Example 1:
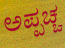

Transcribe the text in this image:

ಅಪ್ಪಚ್ಚ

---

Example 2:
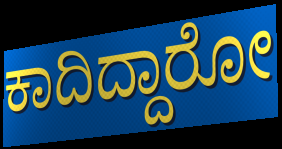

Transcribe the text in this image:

ಕಾದಿದ್ದಾರೋ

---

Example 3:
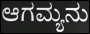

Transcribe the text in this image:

ಆಗಮ್ಯನು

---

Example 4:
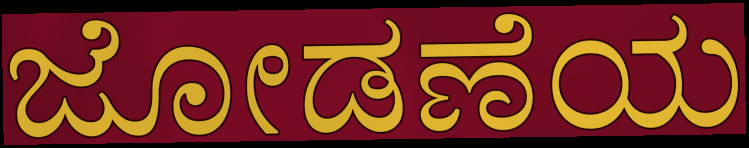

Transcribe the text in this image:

ಜೋಡಣೆಯ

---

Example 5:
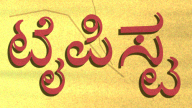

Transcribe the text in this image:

ಟೈಪಿಸ್ಟ